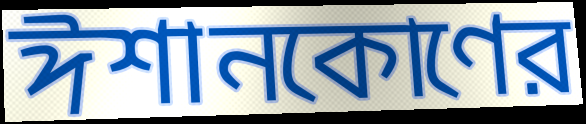
ঈশানকোণের